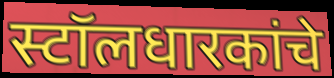
स्टॉलधारकांचे